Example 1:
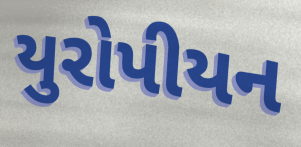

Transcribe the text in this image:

યુરોપીયન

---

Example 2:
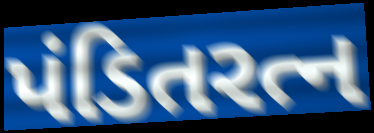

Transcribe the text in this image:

પંડિતરત્ન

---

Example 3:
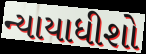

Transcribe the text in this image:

ન્યાયાધીશો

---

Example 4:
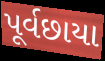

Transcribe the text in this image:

પૂર્વછાયા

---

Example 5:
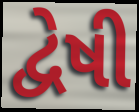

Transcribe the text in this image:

દ્વેષી